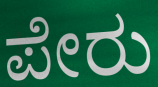
ಪೇರು